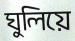
ঘুলিয়ে